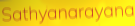
Sathyanarayana